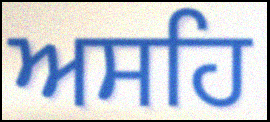
ਅਸਹਿ